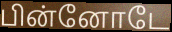
பின்னோடே